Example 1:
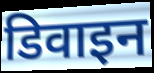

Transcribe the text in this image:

डिवाइन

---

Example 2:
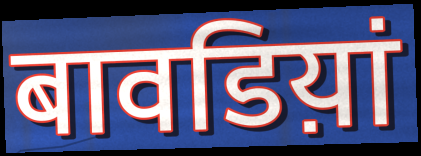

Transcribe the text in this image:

बावडिय़ां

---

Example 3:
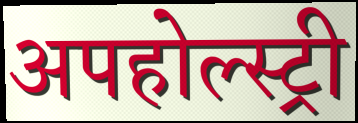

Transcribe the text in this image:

अपहोल्स्ट्री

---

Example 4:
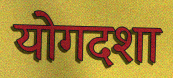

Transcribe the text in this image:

योगदशा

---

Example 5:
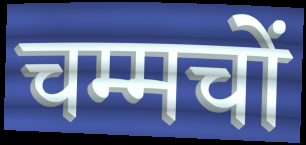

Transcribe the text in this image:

चम्मचों